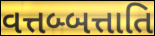
વત્તબ્બત્તાતિ